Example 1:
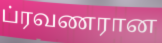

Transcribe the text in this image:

ப்ரவணரான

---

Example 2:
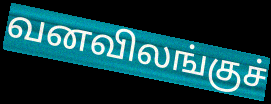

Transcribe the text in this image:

வனவிலங்குச்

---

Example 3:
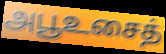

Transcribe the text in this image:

அபூஉசைத்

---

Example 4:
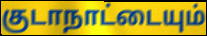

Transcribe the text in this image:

குடாநாட்டையும்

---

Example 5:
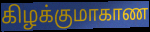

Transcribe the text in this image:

கிழக்குமாகாண